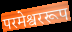
परमेश्वररूप